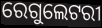
ରେଗୁଲେଟରୀ